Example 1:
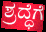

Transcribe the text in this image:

ಶ್ರದ್ಧೆಗೆ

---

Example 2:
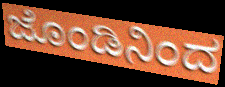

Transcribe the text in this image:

ಜೊಂಡಿನಿಂದ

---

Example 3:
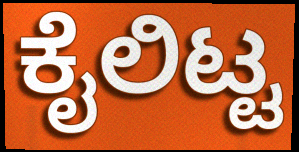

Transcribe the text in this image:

ಕೈಲಿಟ್ಟ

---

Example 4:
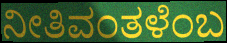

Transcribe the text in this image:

ನೀತಿವಂತಳೆಂಬ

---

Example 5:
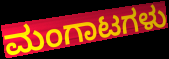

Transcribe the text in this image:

ಮಂಗಾಟಗಳು